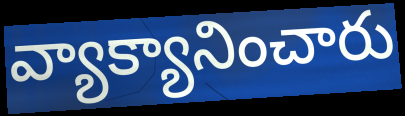
వ్యాక్యానించారు